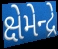
ક્ષેમેન્દ્રે